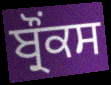
ਬ੍ਰੌਂਕਸ